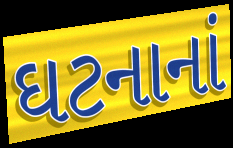
ઘટનાનાં